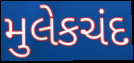
મુલેકચંદ